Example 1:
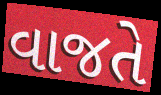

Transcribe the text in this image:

વાજતે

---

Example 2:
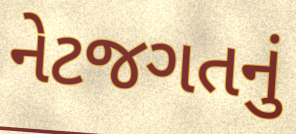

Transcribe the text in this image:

નેટજગતનું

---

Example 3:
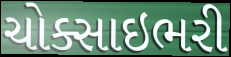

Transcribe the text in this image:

ચોક્સાઇભરી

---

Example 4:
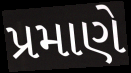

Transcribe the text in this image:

પ્રમાણે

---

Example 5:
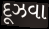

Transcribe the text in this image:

દૂઝવા